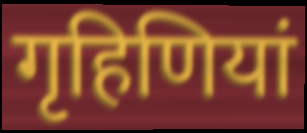
गृहिणियां